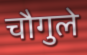
चौगुले